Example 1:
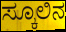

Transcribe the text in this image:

ಸ್ಕೂಲಿನ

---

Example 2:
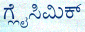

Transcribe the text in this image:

ಗ್ಲೈಸಿಮಿಕ್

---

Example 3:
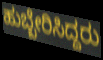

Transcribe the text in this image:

ಹುಬ್ಬೇರಿಸಿದ್ದರು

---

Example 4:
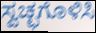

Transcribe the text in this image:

ಸ್ವಚ್ಛಗೊಳಿಸಿ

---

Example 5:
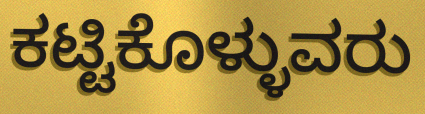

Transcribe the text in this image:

ಕಟ್ಟಿಕೊಳ್ಳುವರು